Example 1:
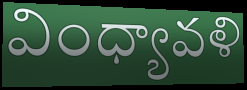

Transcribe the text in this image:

వింధ్యావళి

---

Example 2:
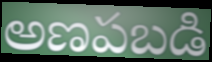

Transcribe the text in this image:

అణపబడి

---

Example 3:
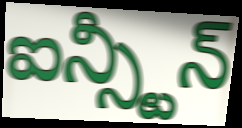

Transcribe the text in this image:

ఐన్స్టీన్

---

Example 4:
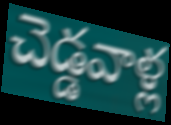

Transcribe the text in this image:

చెడ్డవాళ్ల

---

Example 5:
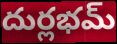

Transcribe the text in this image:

దుర్లభమ్